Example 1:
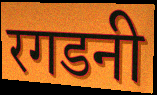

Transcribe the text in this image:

रगडनी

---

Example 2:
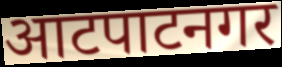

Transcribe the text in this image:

आटपाटनगर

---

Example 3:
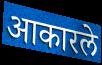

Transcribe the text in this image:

आकारले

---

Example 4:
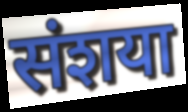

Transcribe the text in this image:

संशया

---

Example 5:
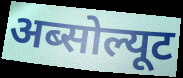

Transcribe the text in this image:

अब्सोल्यूट